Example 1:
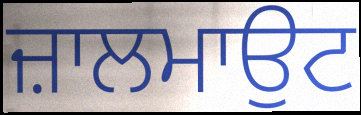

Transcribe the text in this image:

ਜ਼ਾਲਮਾਉਟ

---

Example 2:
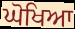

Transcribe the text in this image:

ਘੋਖਿਆ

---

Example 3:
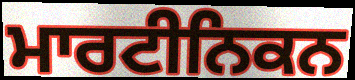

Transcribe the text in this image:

ਮਾਰਟੀਨਿਕਨ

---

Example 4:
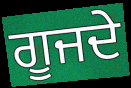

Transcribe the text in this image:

ਗੂਜਦੇ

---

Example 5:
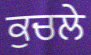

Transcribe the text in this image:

ਕੁਚਲੇ